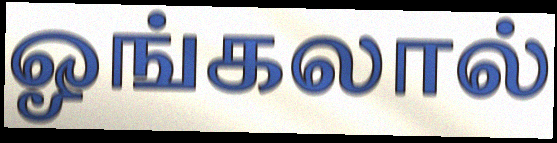
ஓங்கலால்